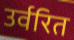
उर्वरित